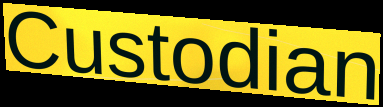
Custodian